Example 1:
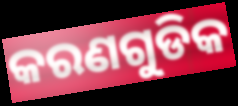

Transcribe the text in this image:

କରଣଗୁଡିକ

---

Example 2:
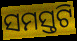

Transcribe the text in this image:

ସମସ୍ତଟି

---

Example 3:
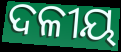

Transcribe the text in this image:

ଦଳୀୟ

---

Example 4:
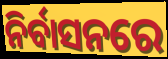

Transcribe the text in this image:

ନିର୍ବାସନରେ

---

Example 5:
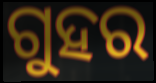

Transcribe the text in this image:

ଗୁହର